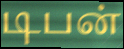
டிபன்